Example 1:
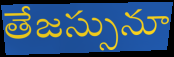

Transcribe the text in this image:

తేజస్సునూ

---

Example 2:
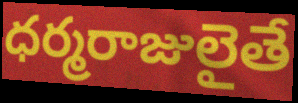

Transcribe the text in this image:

ధర్మరాజులైతే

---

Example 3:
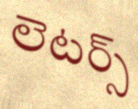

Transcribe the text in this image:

లెటర్స్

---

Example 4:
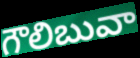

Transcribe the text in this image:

గౌలిబువా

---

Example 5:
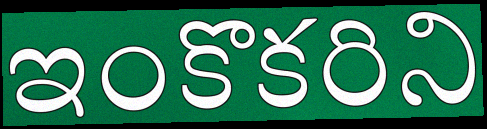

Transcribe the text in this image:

ఇంకొకరిని